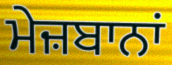
ਮੇਜ਼ਬਾਨਾਂ